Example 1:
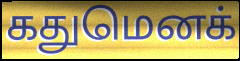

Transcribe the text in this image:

கதுமெனக்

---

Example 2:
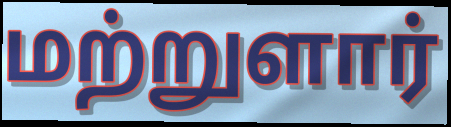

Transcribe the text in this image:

மற்றுளார்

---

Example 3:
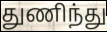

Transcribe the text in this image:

துணிந்து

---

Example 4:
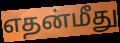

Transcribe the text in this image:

எதன்மீது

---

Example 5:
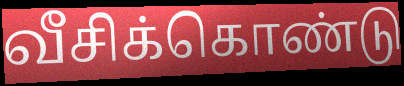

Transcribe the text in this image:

வீசிக்கொண்டு